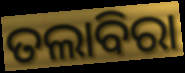
ତଲାବିରା